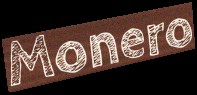
Monero